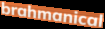
brahmanical